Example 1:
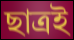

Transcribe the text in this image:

ছাত্ৰই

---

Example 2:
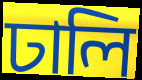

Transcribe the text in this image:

ঢালি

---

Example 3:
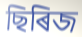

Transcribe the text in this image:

ছিৰিজ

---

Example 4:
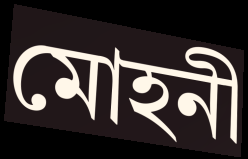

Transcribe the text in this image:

মোহনী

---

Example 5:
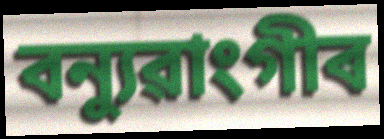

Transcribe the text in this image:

বন্যুৱাংগীৰ